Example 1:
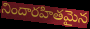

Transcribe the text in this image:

నిందారహితమైన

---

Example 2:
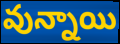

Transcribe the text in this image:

వున్నాయి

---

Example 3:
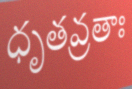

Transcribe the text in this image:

ధృతవ్రతాః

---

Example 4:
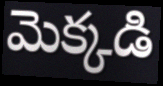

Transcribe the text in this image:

మెక్కడి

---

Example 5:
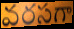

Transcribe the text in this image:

వరసగా